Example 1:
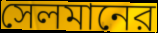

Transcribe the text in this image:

সেলমানের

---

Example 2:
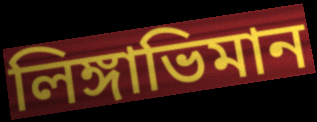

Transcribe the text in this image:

লিঙ্গাভিমান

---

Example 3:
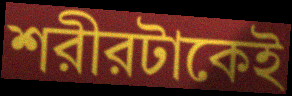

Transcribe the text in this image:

শরীরটাকেই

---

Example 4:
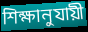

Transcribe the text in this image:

শিক্ষানুযায়ী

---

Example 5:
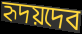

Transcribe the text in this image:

হৃদয়দেব